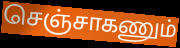
செஞ்சாகணும்